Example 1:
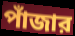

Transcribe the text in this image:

পাঁজার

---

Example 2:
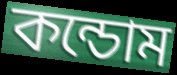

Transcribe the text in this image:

কন্ডোম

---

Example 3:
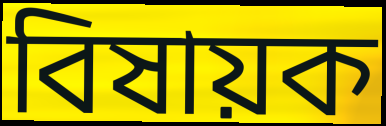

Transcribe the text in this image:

বিষায়ক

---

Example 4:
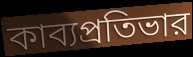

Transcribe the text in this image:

কাব্যপ্রতিভার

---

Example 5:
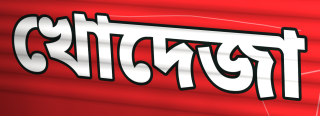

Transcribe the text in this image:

খোদেজা